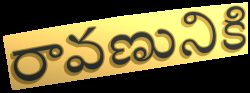
రావణునికి